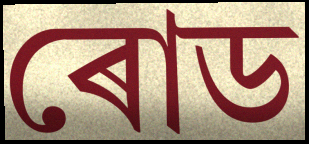
ৰোড